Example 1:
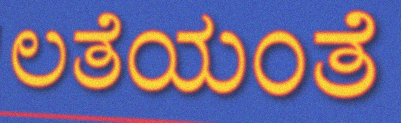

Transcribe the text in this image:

ಲತೆಯಂತೆ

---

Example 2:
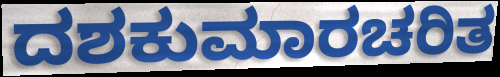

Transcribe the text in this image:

ದಶಕುಮಾರಚರಿತ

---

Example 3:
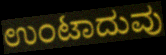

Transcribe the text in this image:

ಉಂಟಾದುವು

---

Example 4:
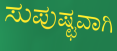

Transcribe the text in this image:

ಸುಪುಷ್ಟವಾಗಿ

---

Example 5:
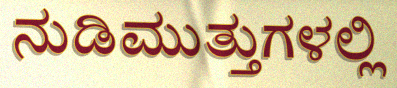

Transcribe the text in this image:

ನುಡಿಮುತ್ತುಗಳಲ್ಲಿ